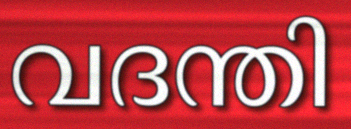
വദന്തി